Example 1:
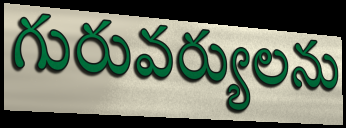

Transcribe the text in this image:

గురువర్యులను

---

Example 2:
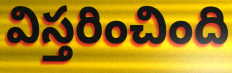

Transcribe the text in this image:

విస్తరించింది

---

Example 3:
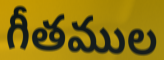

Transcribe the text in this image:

గీతముల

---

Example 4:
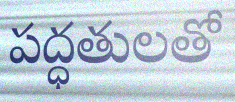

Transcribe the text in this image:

పద్ధతులతో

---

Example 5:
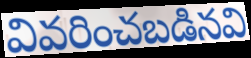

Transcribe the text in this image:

వివరించబడినవి